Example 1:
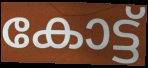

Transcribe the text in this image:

കോട്ട്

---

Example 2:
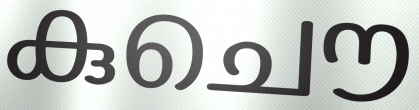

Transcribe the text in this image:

കുചൌ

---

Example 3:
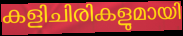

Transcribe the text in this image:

കളിചിരികളുമായി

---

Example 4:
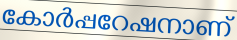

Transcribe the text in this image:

കോർപ്പറേഷനാണ്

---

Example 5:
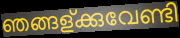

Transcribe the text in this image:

ഞങ്ങള്ക്കുവേണ്ടി